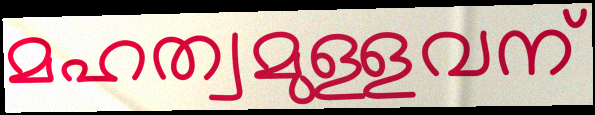
മഹത്വമുള്ളവന്